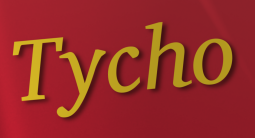
Tycho